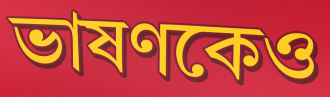
ভাষণকেও